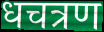
धचत्रण